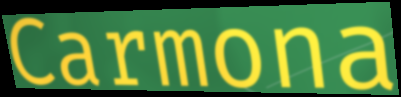
Carmona